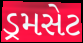
ડ્રમસેટ